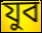
যুব